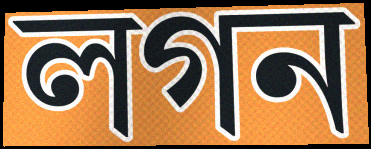
লগন